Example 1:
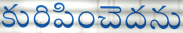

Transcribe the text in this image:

కురిపించెదను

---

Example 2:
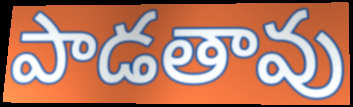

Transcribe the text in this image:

పాడతావు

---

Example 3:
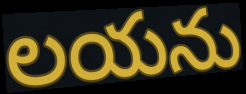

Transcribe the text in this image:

లయను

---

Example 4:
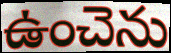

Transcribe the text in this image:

ఉంచెను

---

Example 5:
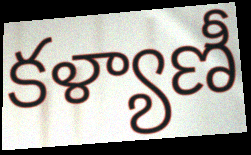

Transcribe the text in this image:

కళ్యాణీ